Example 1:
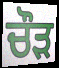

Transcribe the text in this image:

ਚੌੜ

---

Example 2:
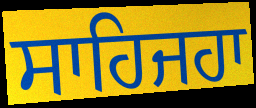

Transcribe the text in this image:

ਸਾਹਿਜਹਾ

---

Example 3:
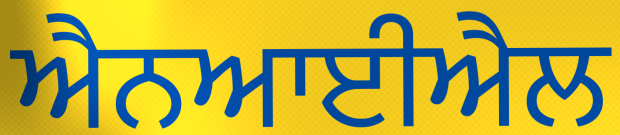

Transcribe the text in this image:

ਐਨਆਈਐਲ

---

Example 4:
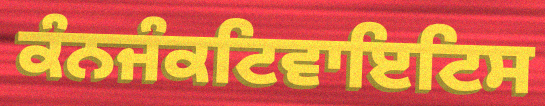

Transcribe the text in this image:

ਕੰਨਜੰਕਟਿਵਾਇਟਿਸ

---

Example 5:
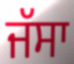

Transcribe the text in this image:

ਜੱਸਾ